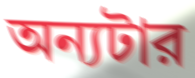
অন্যটার